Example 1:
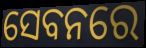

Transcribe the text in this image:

ସେବନରେ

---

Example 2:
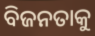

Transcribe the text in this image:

ବିଜନତାକୁ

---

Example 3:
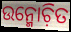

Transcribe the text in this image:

ଉନ୍ମୋଚ଼ିତ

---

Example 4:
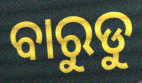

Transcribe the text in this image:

ବାରୁଡୁ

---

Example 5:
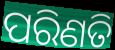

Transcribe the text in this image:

ପରିଣତି